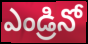
ఎండ్రినో